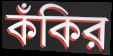
কঁকির